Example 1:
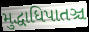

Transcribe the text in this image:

મુદ્ધાધિપાતઞ્ચ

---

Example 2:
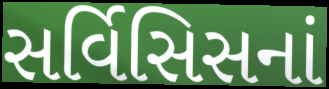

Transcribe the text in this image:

સર્વિસિસનાં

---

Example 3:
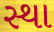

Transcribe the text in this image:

સ્થા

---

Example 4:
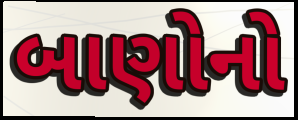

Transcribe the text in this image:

બાણોનો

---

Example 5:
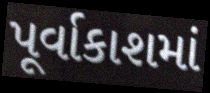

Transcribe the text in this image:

પૂર્વાકાશમાં